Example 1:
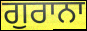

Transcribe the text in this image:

ਗੁਰਾਨਾ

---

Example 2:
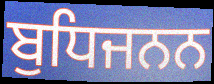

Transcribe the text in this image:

ਬੁਧਿਜਨਨ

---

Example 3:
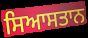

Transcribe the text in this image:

ਸਿਆਸਤਾਨ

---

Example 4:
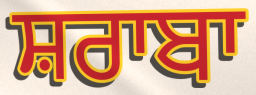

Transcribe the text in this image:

ਸ਼ਰਾਬਾ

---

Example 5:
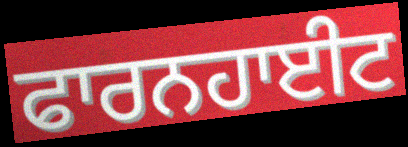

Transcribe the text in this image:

ਫਾਰਨਹਾਈਟ